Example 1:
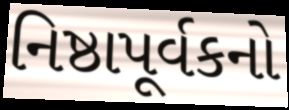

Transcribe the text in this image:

નિષ્ઠાપૂર્વકનો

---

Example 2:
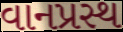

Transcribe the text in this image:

વાનપ્રસ્થ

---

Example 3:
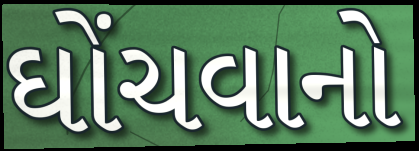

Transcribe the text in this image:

ઘોંચવાનો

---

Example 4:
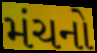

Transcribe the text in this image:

મંચનો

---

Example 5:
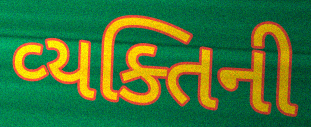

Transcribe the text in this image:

વ્‍યક્તિની